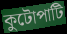
কুটোপাটি